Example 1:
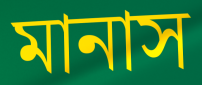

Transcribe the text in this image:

মানাস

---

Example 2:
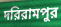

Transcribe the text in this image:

দরিরামপুর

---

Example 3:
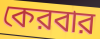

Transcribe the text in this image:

কেরবার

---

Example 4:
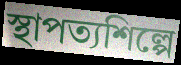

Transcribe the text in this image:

স্থাপত্যশিল্পে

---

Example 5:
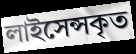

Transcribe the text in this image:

লাইসেন্সকৃত